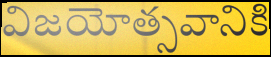
విజయోత్సవానికి